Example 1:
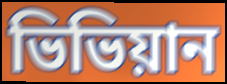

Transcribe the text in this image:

ভিভিয়ান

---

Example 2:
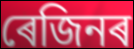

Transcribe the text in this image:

ৰেজিনৰ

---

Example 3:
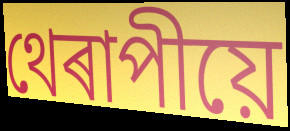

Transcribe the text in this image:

থেৰাপীয়ে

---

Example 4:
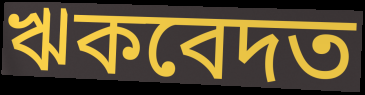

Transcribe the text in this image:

ঋকবেদত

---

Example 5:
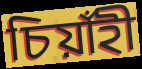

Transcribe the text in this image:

চিয়াঁহী